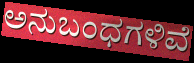
ಅನುಬಂಧಗಳಿವೆ